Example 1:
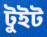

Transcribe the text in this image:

টুইট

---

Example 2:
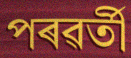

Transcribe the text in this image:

পৰৱৰ্তী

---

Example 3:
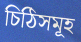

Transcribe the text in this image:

চিঠিসমূহ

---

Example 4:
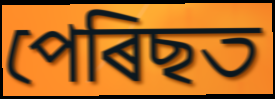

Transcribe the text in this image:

পেৰিছত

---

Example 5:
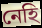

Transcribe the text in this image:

নেহি